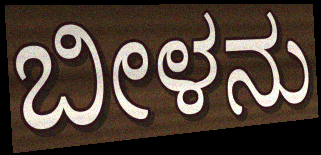
ಬೀಳನು